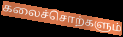
கலைச்சொற்களும்